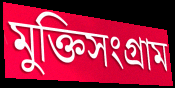
মুক্তিসংগ্রাম